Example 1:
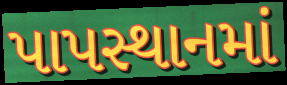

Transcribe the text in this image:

પાપસ્થાનમાં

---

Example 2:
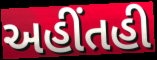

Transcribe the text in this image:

અહીંતહી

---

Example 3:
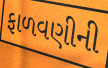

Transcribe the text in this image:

ફાળવણીની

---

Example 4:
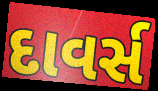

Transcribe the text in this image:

દાવર્સ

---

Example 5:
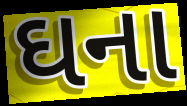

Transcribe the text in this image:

ઘના